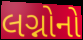
લગ્નોનો